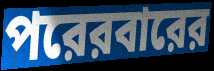
পরেরবারের